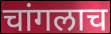
चांगलाच